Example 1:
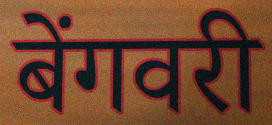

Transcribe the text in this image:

बेंगवरी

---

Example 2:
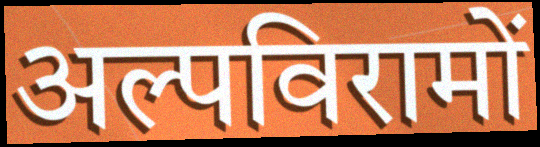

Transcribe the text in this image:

अल्पविरामों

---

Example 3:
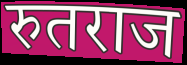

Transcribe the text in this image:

रुतराज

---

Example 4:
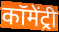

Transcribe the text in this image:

कॉमेंट्री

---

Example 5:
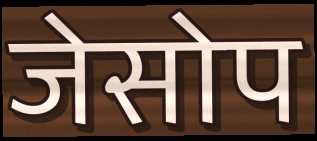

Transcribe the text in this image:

जेसोप